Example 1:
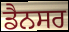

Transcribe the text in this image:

ਡੈਨਸਰ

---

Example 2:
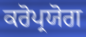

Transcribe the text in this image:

ਕਰੋਪ੍ਰਯੋਗ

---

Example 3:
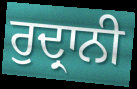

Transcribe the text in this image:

ਰੁਦ੍ਰਾਨੀ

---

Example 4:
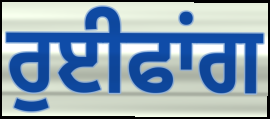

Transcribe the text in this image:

ਰੁਈਫਾਂਗ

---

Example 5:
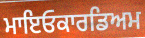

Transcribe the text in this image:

ਮਾਇਓਕਾਰਡਿਅਮ